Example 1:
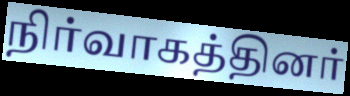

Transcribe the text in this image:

நிர்வாகத்தினர்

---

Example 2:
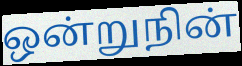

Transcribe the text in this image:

ஒன்றுநின்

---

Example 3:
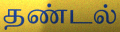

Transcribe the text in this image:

தண்டல்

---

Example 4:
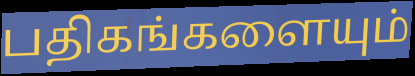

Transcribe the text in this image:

பதிகங்களையும்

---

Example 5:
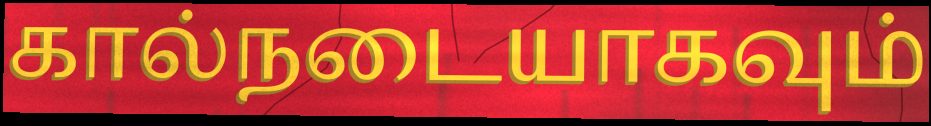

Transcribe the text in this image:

கால்நடையாகவும்